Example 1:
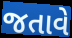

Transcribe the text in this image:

જતાવે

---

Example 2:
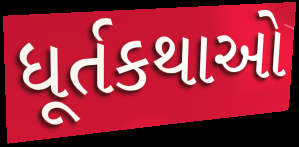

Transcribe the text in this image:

ધૂર્તકથાઓ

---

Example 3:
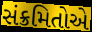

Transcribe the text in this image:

સંક્રમિતોએ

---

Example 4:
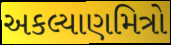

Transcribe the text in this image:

અકલ્યાણમિત્રો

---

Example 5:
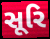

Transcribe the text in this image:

સૂરિ